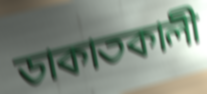
ডাকাতকালী